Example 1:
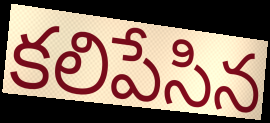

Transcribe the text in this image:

కలిపేసిన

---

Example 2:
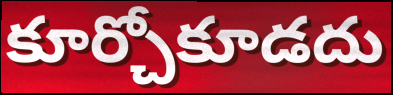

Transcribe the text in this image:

కూర్చోకూడదు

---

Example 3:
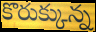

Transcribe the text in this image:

కొరుక్కున్న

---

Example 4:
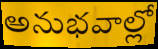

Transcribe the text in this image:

అనుభవాల్లో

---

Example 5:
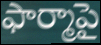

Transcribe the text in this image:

ఫార్మాపై